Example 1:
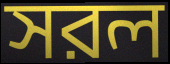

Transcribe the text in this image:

সরল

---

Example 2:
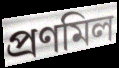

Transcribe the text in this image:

প্রণমিল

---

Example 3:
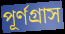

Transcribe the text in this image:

পূর্ণগ্রাস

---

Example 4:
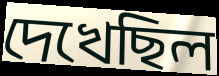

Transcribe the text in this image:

দেখেছিল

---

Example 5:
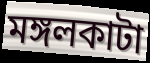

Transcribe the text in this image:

মঙ্গলকাটা